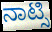
ನಾಟ್ಸಿ